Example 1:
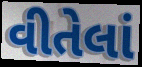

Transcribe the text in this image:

વીતેલાં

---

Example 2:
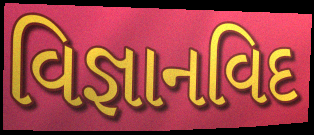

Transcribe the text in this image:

વિજ્ઞાનવિદ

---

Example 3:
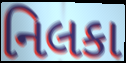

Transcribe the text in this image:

નિલકા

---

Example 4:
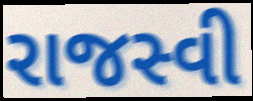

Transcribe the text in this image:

રાજસ્વી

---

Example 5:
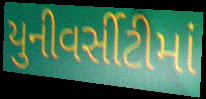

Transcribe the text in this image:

યુનીવર્સીટીમાં